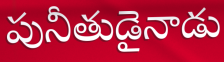
పునీతుడైనాడు